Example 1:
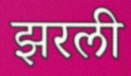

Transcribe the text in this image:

झरली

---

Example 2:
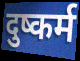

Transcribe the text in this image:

दुष्कर्म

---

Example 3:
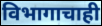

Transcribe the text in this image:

विभागाचाही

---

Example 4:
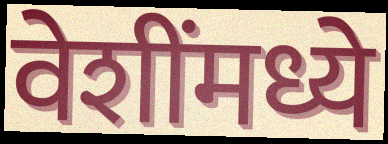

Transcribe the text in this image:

वेशींमध्ये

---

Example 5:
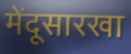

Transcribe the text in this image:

मेंदूसारखा